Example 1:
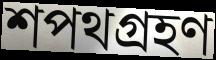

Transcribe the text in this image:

শপথগ্রহণ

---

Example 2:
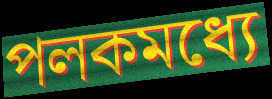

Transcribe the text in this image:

পলকমধ্যে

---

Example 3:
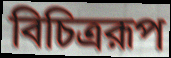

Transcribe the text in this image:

বিচিত্ররূপ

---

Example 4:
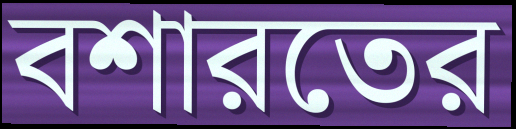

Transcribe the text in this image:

বশারতের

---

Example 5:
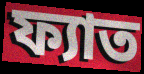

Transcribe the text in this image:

ফ্যাত